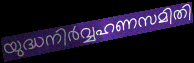
യുദ്ധനിർവ്വഹണസമിതി